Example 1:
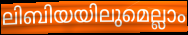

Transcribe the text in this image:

ലിബിയയിലുമെല്ലാം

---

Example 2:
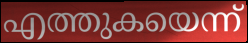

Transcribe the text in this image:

എത്തുകയെന്ന്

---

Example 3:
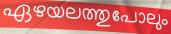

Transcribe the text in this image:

ഏഴയലത്തുപോലും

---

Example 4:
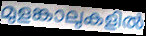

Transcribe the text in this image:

മുളങ്കാലുകളിൽ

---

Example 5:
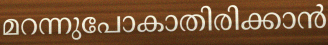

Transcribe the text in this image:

മറന്നുപോകാതിരിക്കാൻ